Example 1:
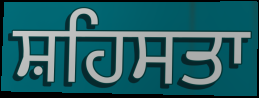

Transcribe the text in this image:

ਸ਼ਹਿਸਤਾ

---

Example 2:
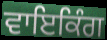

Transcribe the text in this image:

ਵਾਇਕਿੰਗ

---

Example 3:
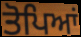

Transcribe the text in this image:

ਤੋਪਿਆਂ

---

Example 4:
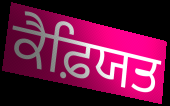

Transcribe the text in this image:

ਕੈਫ਼ਿਯਤ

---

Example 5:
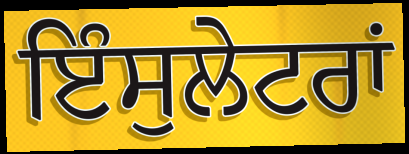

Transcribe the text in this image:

ਇੰਸੁਲੇਟਰਾਂ